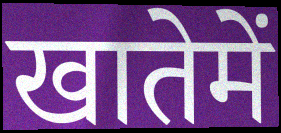
खातेमें